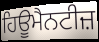
ਹਿਊਮੈਨਟੀਜ਼